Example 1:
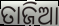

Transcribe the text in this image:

ତାଜିଆ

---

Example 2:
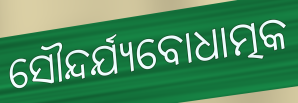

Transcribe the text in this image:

ସୌନ୍ଦର୍ଯ୍ୟବୋଧାତ୍ମକ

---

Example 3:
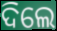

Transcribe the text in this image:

ଦିଲେ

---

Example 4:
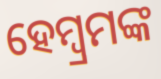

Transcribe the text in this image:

ହେମ୍ବ୍ରମଙ୍କ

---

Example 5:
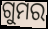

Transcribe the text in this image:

ଗୁମର